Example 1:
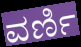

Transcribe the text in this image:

ವರ್ಣಿ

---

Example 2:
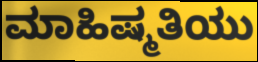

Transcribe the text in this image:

ಮಾಹಿಷ್ಮತಿಯು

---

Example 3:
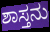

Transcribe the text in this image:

ಶಾಸ್ತನು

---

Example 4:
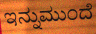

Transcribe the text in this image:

ಇನ್ನುಮುಂದೆ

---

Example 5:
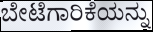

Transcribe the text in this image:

ಬೇಟೆಗಾರಿಕೆಯನ್ನು